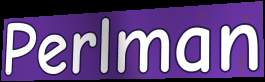
Perlman